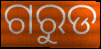
ଗରୁଡ